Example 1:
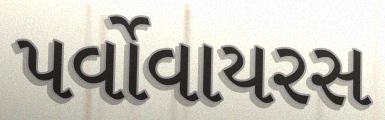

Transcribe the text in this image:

પર્વોવાયરસ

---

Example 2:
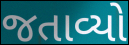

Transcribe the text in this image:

જતાવ્યો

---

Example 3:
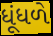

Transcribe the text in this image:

ધૂંધળે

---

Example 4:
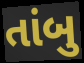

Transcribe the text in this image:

તાંબુ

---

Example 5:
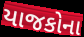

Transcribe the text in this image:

યાજકોના